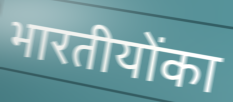
भारतीयोंका